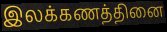
இலக்கணத்தினை